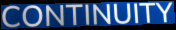
CONTINUITY